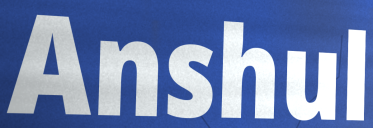
Anshul